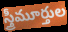
స్త్రీమూర్తుల